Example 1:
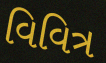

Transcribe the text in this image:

વિવિત્ર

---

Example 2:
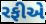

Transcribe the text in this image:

રફીએ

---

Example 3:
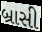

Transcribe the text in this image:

બ્રાસી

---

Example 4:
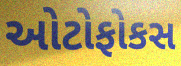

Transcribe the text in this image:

ઓટોફોકસ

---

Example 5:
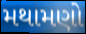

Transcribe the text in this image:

મથામણો